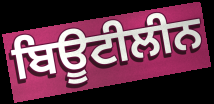
ਬਿਊਟੀਲੀਨ